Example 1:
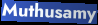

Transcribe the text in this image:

Muthusamy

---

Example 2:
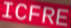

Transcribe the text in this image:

ICFRE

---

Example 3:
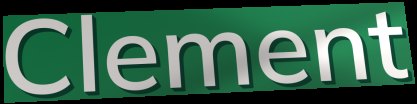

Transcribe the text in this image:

Clement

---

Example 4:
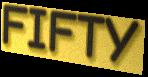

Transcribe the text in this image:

FIFTY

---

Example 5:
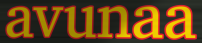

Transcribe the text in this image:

avunaa